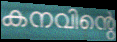
കനവിന്റെ